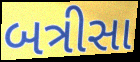
બત્રીસા